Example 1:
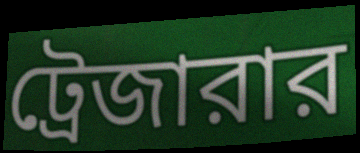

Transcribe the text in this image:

ট্রেজারার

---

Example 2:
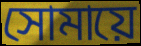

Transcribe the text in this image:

সোমায়ে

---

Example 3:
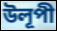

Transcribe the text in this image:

উলূপী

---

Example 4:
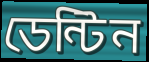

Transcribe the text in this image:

ডেন্টিন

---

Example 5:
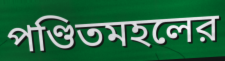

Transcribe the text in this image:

পণ্ডিতমহলের